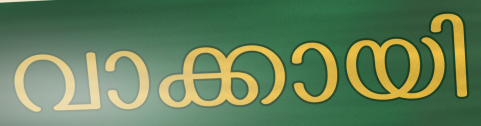
വാക്കായി